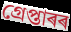
গ্ৰেপ্তাৰৰ